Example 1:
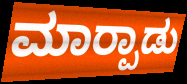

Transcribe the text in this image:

ಮಾರ‍್ಪಾಡು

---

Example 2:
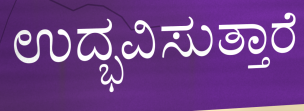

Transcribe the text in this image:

ಉದ್ಭವಿಸುತ್ತಾರೆ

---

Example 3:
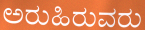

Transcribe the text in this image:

ಅರುಹಿರುವರು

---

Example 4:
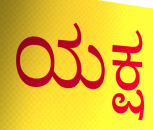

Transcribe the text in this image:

ಯಕ್ಷ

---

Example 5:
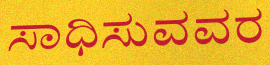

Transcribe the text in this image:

ಸಾಧಿಸುವವರ